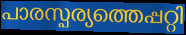
പാരസ്പര്യത്തെപ്പറ്റി